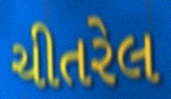
ચીતરેલ